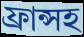
ফ্রান্সহ